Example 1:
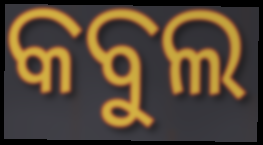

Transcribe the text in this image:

କବୁଲ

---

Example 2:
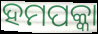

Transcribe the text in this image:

ହମପକ୍କା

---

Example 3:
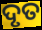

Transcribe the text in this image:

ଦୃତ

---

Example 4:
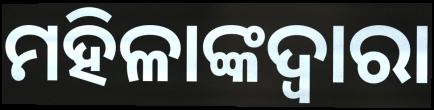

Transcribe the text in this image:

ମହିଳାଙ୍କଦ୍ୱାରା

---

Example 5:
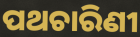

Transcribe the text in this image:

ପଥଚାରିଣୀ